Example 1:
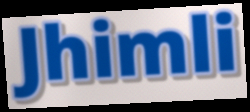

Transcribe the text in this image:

Jhimli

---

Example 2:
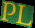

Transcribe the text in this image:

PL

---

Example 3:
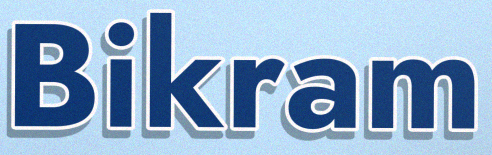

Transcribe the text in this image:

Bikram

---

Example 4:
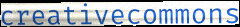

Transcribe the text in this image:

creativecommons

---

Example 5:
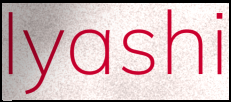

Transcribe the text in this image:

Iyashi